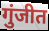
गुंजीत